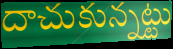
దాచుకున్నట్టు